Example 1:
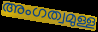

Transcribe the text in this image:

അംഗത്വമുള്ള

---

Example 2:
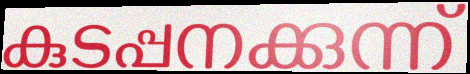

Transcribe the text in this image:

കുടപ്പനക്കുന്ന്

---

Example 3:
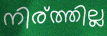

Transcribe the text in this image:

നിര്ത്തില്ല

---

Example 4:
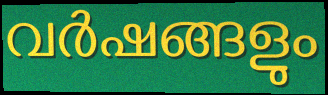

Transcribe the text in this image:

വർഷങ്ങളും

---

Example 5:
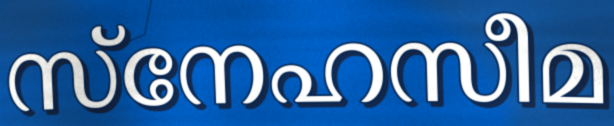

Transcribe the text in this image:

സ്നേഹസീമ